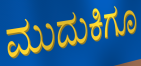
ಮುದುಕಿಗೂ